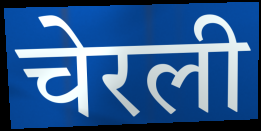
चेरली